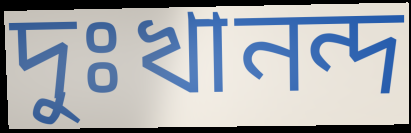
দুঃখানন্দ